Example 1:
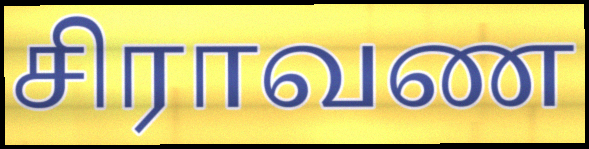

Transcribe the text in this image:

சிராவண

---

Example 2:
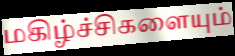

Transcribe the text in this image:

மகிழ்ச்சிகளையும்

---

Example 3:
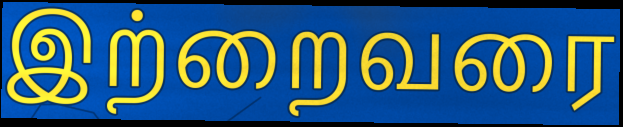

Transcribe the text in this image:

இற்றைவரை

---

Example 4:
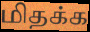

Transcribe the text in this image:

மிதக்க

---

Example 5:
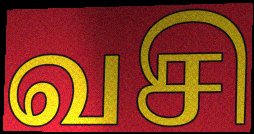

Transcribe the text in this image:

வசி